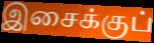
இசைக்குப்